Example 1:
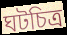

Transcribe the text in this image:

ঘটচিত্র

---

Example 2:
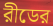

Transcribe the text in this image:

রীডের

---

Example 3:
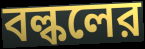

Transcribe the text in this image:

বল্কলের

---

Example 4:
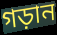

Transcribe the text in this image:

গড়ান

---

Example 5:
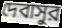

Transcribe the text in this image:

দেবাসুর